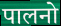
पालनो